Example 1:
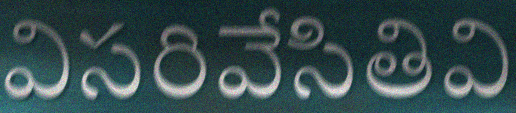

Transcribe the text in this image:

విసరివేసితివి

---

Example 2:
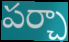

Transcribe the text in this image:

పర్చా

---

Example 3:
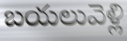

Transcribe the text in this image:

బయలువెళ్లి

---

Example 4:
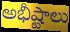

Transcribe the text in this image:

అభీష్టాలు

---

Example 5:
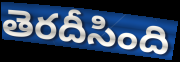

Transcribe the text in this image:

తెరదీసింది